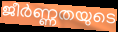
ജീർണ്ണതയുടെ